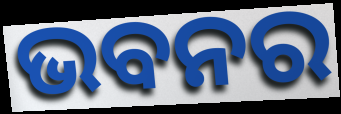
ଭବନର